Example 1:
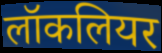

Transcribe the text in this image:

लॉकलियर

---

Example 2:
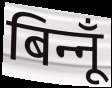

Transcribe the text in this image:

बिन्नूँ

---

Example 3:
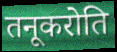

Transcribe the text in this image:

तनूकरोति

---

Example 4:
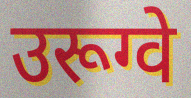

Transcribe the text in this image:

उरूग्वे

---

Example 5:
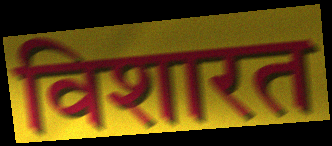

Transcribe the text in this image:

विशारत